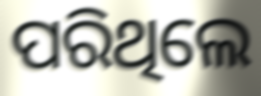
ପରିଥିଲେ